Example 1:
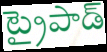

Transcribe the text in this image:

ట్రైపాడ్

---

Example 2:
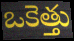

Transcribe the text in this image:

ఒకెత్తు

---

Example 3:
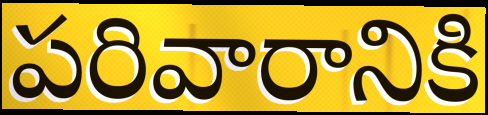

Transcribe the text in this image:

పరివారానికి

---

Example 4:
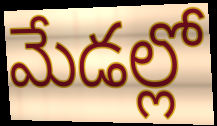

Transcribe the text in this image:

మేడల్లో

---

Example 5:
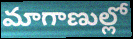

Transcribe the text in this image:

మాగాణుల్లో